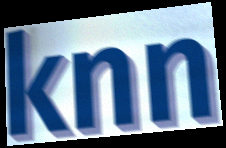
knn